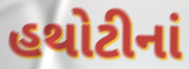
હથોટીનાં